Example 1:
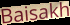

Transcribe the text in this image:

Baisakh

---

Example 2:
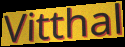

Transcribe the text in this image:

Vitthal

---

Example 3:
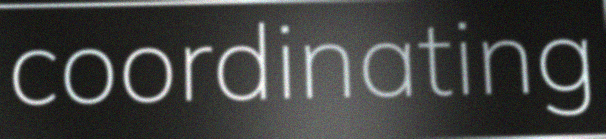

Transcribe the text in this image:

coordinating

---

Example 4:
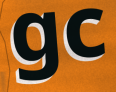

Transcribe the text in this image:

gc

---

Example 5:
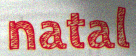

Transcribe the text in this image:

natal